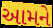
આમને